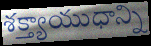
శక్త్యాయుధాన్ని